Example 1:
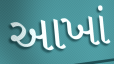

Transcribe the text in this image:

આખાં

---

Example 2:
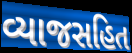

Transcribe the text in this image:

વ્યાજસહિત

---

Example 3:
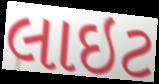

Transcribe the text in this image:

લાઇટ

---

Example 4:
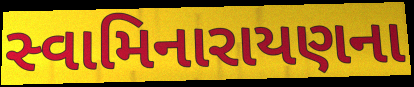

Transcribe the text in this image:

સ્વામિનારાયણના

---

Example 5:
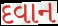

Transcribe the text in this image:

દવાન